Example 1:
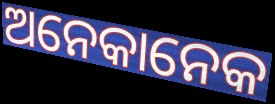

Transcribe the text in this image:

ଅନେକାନେକ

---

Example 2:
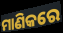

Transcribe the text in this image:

ମାଣିକରେ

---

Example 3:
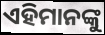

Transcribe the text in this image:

ଏହିମାନଙ୍କୁ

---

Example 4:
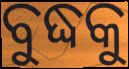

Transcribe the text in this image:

ବୁଦ୍ଧକୁ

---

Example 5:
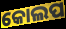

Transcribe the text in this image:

କୋଲପ